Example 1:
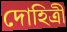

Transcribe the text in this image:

দোহিত্রী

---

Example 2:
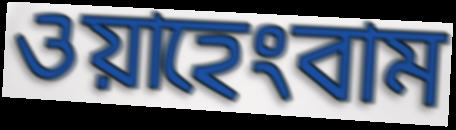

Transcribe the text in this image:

ওয়াহেংবাম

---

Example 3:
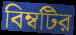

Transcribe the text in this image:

বিম্বটির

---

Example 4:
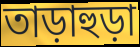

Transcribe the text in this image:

তাড়াহুড়া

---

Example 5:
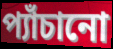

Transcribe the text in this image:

প্যাঁচানো